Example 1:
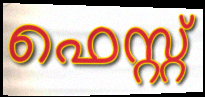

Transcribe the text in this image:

ഫെസ്റ്റ്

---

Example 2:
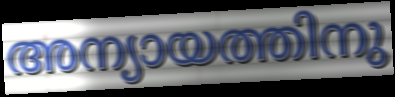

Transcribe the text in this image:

അന്യായത്തിനു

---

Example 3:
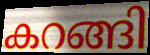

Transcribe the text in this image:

കറങ്ങി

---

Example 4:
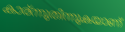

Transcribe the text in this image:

കാര്ന്നുതിന്നുകയാണ്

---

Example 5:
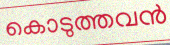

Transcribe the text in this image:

കൊടുത്തവൻ